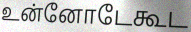
உன்னோடேகூட